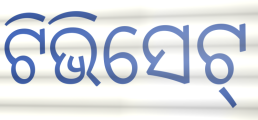
ଟିଭିସେଟ୍